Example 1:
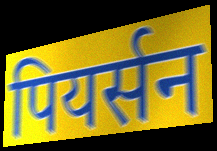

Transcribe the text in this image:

पियर्सन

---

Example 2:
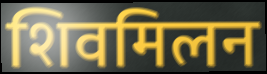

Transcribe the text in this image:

शिवमिलन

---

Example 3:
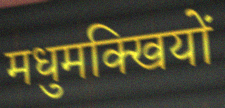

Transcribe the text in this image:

मधुमक्खियों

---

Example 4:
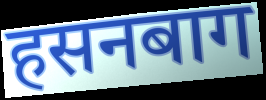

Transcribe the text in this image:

हसनबाग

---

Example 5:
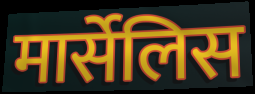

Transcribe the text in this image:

मार्सेलिस